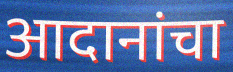
आदानांचा